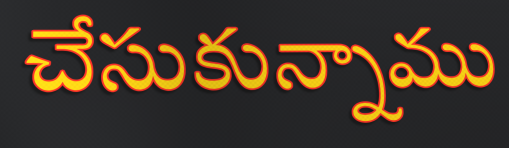
చేసుకున్నాము